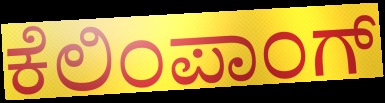
ಕೆಲಿಂಪಾಂಗ್